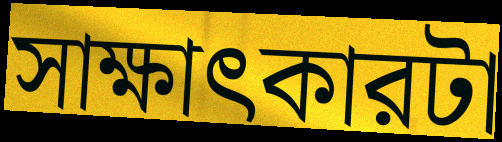
সাক্ষাৎকারটা